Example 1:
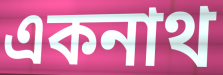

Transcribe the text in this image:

একনাথ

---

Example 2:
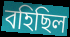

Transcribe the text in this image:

বহিছিল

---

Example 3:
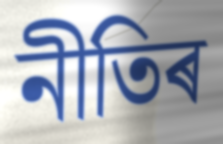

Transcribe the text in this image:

নীতিৰ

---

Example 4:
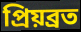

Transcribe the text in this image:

প্ৰিয়ব্ৰত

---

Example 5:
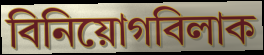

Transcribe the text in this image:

বিনিয়োগবিলাক